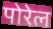
पोरेल